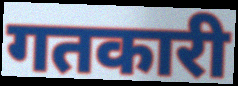
गतकारी